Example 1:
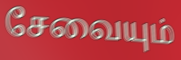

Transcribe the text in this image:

சேவையும்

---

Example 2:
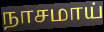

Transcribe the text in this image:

நாசமாய்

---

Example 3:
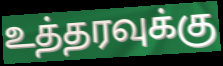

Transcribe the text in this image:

உத்தரவுக்கு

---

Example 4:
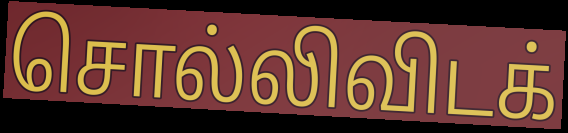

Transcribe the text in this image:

சொல்லிவிடக்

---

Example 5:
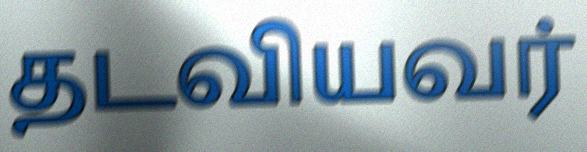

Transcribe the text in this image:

தடவியவர்